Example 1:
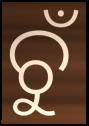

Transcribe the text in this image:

ଚୁଁ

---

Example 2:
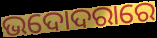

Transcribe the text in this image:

ଭଦୋଦରାରେ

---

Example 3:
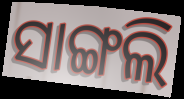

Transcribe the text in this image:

ସାଙ୍ଗଲି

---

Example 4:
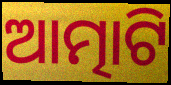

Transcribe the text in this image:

ଆତ୍ମାଟି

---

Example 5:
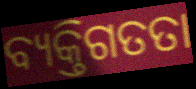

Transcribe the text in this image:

ବ୍ୟକ୍ତିଗତତା